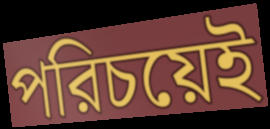
পরিচয়েই